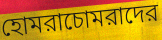
হোমরাচোমরাদের